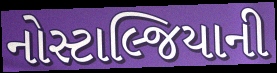
નોસ્ટાલ્જિયાની